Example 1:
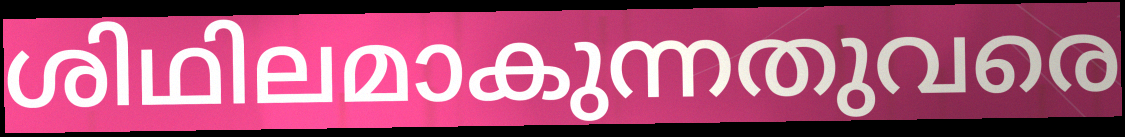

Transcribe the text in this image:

ശിഥിലമാകുന്നതുവരെ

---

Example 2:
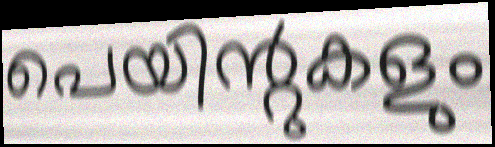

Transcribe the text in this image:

പെയിന്റുകളും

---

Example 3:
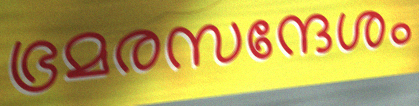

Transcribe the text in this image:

ഭ്രമരസന്ദേശം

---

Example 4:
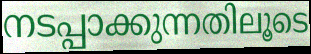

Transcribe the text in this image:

നടപ്പാക്കുന്നതിലൂടെ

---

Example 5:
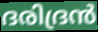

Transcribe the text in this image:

ദരിദ്രൻ